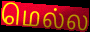
மெல்ல